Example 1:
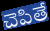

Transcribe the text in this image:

చెపితే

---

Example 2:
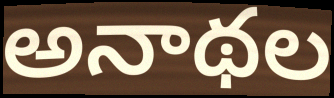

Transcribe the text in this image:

అనాథల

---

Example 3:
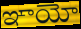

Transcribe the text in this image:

ఞాయో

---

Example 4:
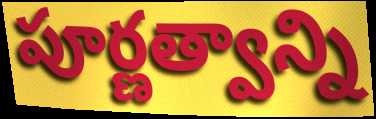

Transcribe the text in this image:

పూర్ణత్వాన్ని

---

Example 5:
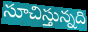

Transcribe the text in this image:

సూచిస్తున్నది